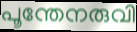
പൂന്തേനരുവി